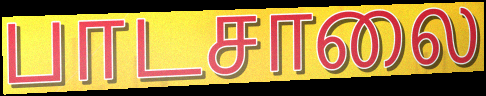
பாடசாலை